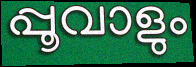
പ്പൂവാളും